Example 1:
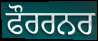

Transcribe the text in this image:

ਫੌਰਰਨਰ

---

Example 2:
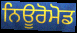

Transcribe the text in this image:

ਨਿਊਰੋਮੋਡ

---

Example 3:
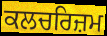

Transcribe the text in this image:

ਕਲਚਰਿਜ਼ਮ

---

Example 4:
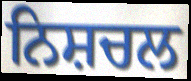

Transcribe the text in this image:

ਨਿਸ਼ਚਲ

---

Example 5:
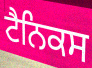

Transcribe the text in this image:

ਟੈਨਿਕਸ